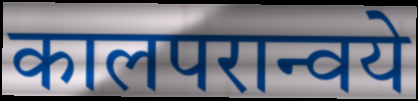
कालपरान्वये